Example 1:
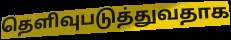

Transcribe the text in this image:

தெளிவுபடுத்துவதாக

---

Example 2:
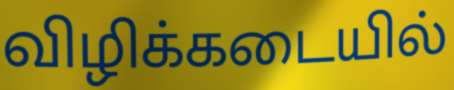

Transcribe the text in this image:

விழிக்கடையில்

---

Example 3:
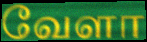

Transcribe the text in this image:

வேளா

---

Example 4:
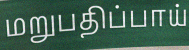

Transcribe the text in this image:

மறுபதிப்பாய்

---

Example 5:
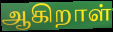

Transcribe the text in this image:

ஆகிறாள்